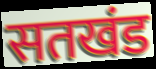
सतखंड